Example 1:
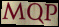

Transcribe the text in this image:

MQP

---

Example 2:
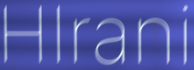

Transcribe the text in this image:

HIrani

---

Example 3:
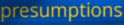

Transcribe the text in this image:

presumptions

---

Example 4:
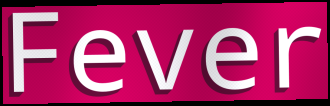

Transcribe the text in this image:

Fever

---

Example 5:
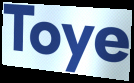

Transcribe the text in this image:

Toye